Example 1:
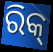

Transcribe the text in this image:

ରିକ୍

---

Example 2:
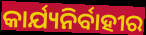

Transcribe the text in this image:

କାର୍ଯ୍ୟନିର୍ବାହୀର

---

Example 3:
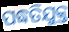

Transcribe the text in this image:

ପଦ୍ଧତିଯୁକ୍ତ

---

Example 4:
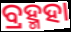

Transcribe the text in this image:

ବ୍ରହ୍ମହା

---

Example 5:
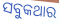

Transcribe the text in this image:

ସବୁକଥାର